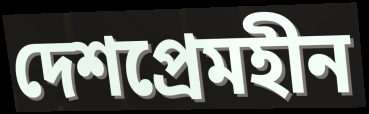
দেশপ্ৰেমহীন